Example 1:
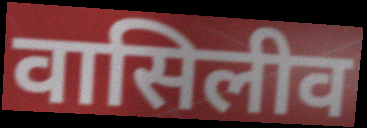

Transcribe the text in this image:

वासिलीव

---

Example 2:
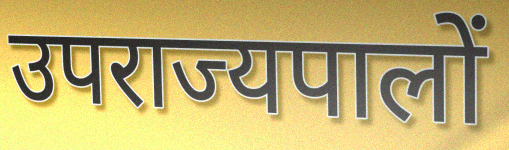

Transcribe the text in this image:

उपराज्यपालों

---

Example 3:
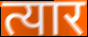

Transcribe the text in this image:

त्यार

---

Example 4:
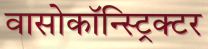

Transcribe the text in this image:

वासोकॉन्स्ट्रिक्टर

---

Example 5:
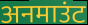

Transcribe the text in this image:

अनमाउंट